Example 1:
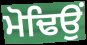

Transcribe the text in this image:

ਮੋਢਿਉਂ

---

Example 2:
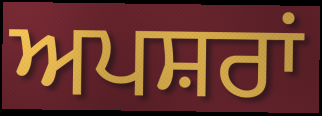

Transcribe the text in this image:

ਅਪਸ਼ਰਾਂ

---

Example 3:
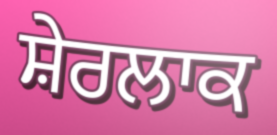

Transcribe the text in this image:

ਸ਼ੇਰਲਾਕ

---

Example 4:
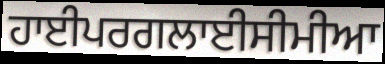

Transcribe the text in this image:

ਹਾਈਪਰਗਲਾਈਸੀਮੀਆ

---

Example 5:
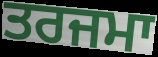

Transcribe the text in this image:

ਤਰਜਮਾ